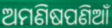
ଅମଣିଷପଣିଆଁ